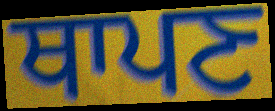
ਥਾਪਣ